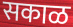
सकाळ